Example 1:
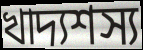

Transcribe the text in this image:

খাদ্যশস্য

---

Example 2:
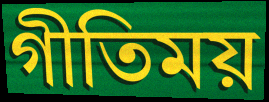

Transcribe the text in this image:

গীতিময়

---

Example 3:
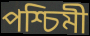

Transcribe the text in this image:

পশ্চিমী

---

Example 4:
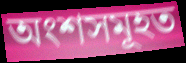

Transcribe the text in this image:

অংশসমূহত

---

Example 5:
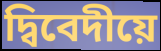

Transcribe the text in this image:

দ্বিবেদীয়ে